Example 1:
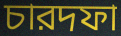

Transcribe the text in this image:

চারদফা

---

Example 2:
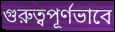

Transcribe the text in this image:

গুরুত্বপূর্ণভাবে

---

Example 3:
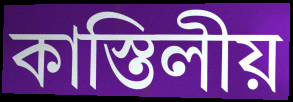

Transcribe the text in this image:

কাস্তিলীয়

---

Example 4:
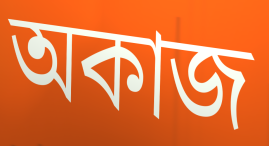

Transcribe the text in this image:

অকাজ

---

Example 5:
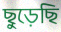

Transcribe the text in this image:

ছুড়েছি